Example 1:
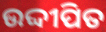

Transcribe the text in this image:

ଉଦ୍ଦୀପିତ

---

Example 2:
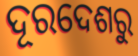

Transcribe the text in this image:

ଦୂରଦେଶରୁ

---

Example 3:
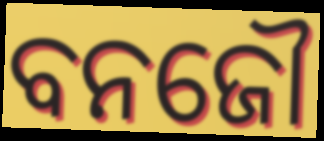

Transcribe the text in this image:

ବନଜୌ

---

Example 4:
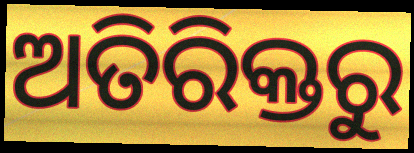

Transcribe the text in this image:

ଅତିରିକ୍ତରୁ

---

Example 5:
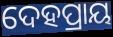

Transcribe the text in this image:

ଦେହପ୍ରାୟ